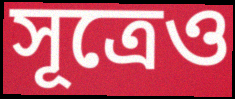
সূত্রেও